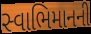
સ્વાભિમાનની